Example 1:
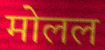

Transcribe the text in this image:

मोलल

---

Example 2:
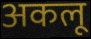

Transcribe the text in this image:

अकलू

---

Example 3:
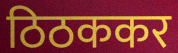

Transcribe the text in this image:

ठिठककर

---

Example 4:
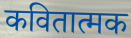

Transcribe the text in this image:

कवितात्मक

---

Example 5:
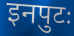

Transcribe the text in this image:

इनपुटः